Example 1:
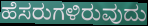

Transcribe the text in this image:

ಹೆಸರುಗಳಿರುವುದು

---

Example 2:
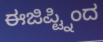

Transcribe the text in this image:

ಈಜಿಪ್ಟ್ನಿಂದ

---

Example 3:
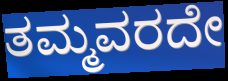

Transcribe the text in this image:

ತಮ್ಮವರದೇ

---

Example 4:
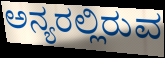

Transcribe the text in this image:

ಅನ್ಯರಲ್ಲಿರುವ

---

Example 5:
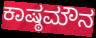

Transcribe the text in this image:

ಕಾಷ್ಠಮೌನ